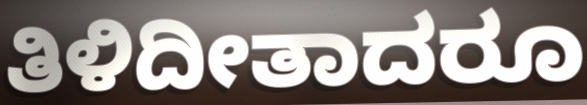
ತಿಳಿದೀತಾದರೂ